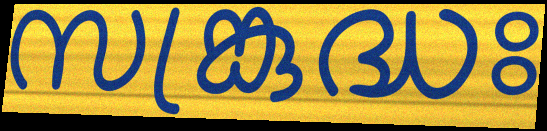
സങ്ക്രുദ്ധഃ